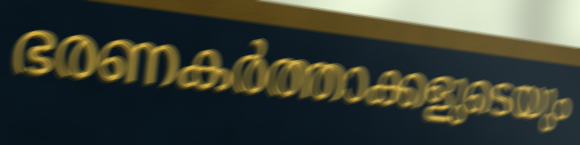
ഭരണകർത്താക്കളുടെയും